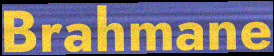
Brahmane